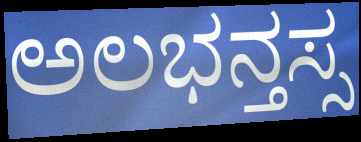
ಅಲಭನ್ತಸ್ಸ